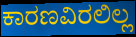
ಕಾರಣವಿರಲಿಲ್ಲ